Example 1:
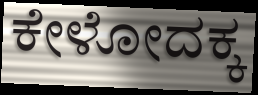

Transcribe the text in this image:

ಕೇಳೋದಕ್ಕ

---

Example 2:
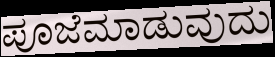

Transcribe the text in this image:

ಪೂಜೆಮಾಡುವುದು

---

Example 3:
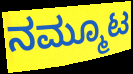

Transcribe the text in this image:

ನಮ್ಮೂಟ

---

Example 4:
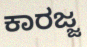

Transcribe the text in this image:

ಕಾರಜ್ಜ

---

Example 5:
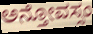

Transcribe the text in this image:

ಅನ್ತೋವಸ್ಸಂ